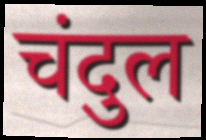
चंदुल